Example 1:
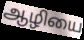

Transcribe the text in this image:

ஆழியை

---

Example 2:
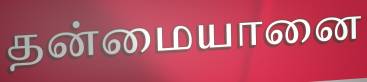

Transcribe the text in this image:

தன்மையானை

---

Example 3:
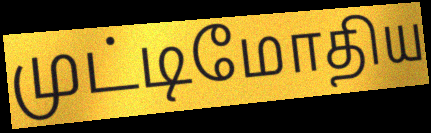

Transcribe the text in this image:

முட்டிமோதிய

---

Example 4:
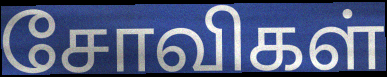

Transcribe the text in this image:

சோவிகள்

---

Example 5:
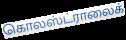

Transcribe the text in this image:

கொலஸ்ட்ராலைக்